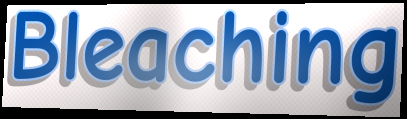
Bleaching